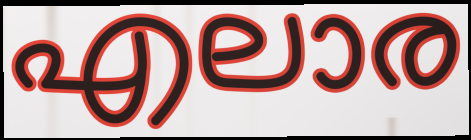
എലാര